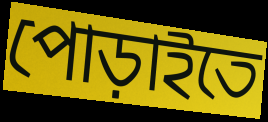
পোড়াইতে